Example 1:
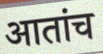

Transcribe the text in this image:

आतांच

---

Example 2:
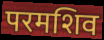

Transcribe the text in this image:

परमशिव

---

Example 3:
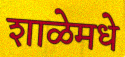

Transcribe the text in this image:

शाळेमधे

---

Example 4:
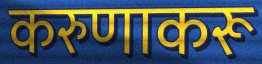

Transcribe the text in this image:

करुणाकरू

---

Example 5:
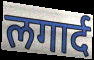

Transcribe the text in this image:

लगार्द